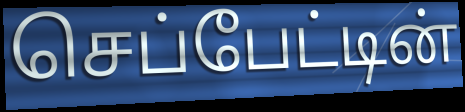
செப்பேட்டின்